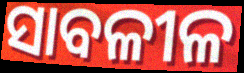
ସାବଳୀଳ